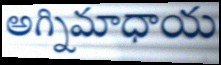
అగ్నిమాధాయ